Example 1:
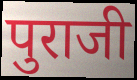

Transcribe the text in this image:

पुराजी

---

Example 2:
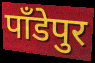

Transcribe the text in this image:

पाँडेपुर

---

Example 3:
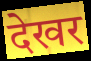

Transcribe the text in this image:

देखर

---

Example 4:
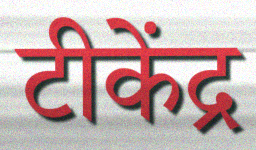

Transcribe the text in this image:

टीकेंद्र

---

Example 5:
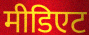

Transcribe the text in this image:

मीडिएट